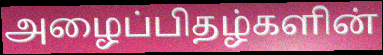
அழைப்பிதழ்களின்